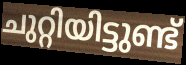
ചുറ്റിയിട്ടുണ്ട്